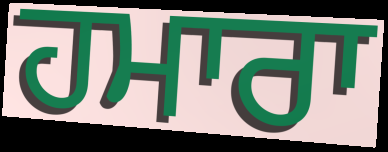
ਹਮਾਰਾ